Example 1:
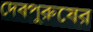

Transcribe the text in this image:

দেবপুরুষের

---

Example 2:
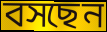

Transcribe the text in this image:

বসছেন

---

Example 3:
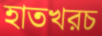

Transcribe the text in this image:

হাতখরচ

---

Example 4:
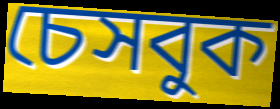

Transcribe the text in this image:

চেসবুক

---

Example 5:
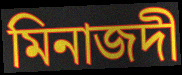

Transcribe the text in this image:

মিনাজদী